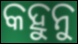
କହୁନୁ